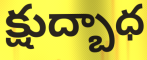
క్షుద్బాధ